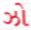
ઝો